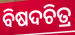
ବିଷଦଚିତ୍ର